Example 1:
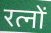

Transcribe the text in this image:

रत्नों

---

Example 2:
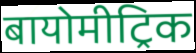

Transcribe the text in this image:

बायोमीट्रिक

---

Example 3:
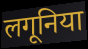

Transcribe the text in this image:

लगूनिया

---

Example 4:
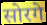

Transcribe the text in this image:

सोरगे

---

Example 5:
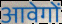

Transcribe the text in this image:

आवेगों